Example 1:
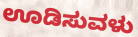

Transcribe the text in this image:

ಊಡಿಸುವಳು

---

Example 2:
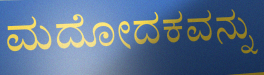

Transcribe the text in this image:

ಮದೋದಕವನ್ನು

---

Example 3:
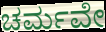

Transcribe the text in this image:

ಚರ್ಮವೇ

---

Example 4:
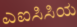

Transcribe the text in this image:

ಎಐಸಿಸಿಯ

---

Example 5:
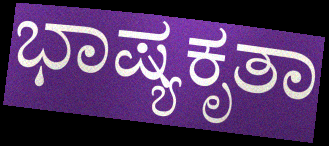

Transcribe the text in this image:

ಭಾಷ್ಯಕೃತಾ